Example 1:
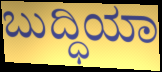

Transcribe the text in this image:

ಬುದ್ಧಿಯಾ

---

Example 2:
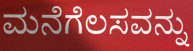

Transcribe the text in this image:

ಮನೆಗೆಲಸವನ್ನು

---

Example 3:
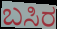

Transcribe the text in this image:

ಬಸಿರ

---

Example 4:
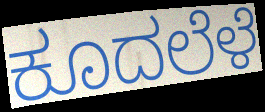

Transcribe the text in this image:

ಕೂದಲೆಳೆ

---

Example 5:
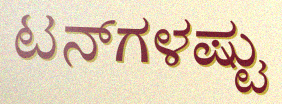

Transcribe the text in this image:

ಟನ್‌ಗಳಷ್ಟು